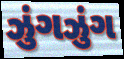
ઝુંગઝુંગ